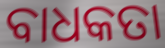
ବାଧକତା